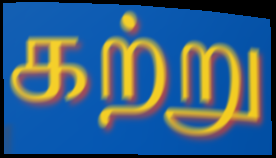
கற்று